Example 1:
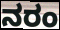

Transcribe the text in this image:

ನರಂ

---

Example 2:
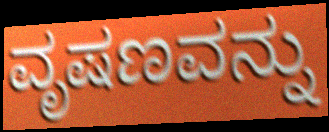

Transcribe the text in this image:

ವೃಷಣವನ್ನು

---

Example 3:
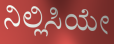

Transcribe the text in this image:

ನಿಲ್ಲಿಸಿಯೇ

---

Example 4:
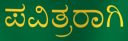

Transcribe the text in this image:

ಪವಿತ್ರರಾಗಿ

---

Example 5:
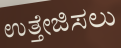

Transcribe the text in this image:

ಉತ್ತೇಜಿಸಲು